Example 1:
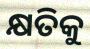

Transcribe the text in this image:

କ୍ଷତିକୁ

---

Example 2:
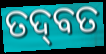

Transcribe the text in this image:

ତଦ୍‍ବତ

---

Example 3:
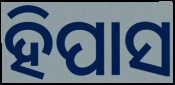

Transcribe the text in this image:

ହିପାସ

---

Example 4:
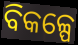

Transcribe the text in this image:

ବିକଳ୍ପେ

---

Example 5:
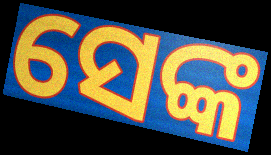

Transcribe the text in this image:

ସେଙ୍କ